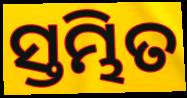
ସ୍ତମ୍ଭିତ